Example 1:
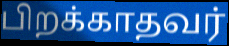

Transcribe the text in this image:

பிறக்காதவர்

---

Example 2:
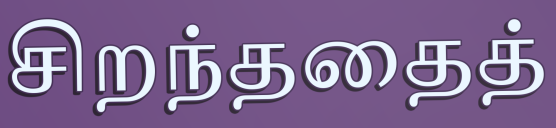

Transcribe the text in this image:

சிறந்ததைத்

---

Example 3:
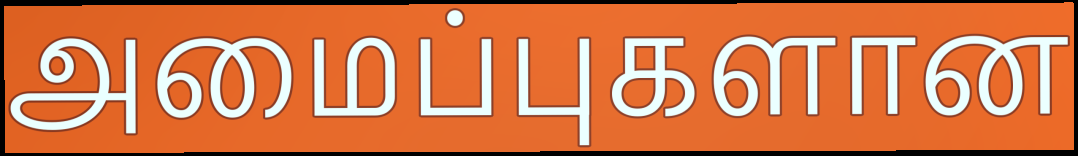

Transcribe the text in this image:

அமைப்புகளான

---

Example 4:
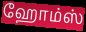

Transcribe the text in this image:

ஹோம்ஸ்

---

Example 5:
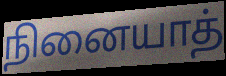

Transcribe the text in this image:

நினையாத்